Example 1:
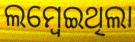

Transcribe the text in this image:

ଲମ୍ବେଇଥିଲା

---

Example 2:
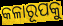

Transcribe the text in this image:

କଳାରୂପକୁ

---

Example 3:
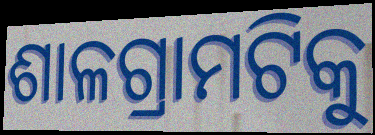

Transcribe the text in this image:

ଶାଳଗ୍ରାମଟିକୁ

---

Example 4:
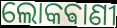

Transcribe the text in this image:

ଲୋକଵାଣୀ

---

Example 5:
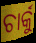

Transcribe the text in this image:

ଚାର୍କୁ